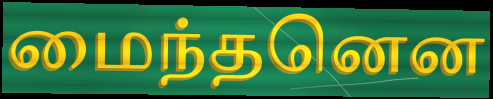
மைந்தனென